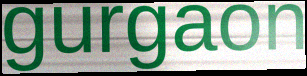
gurgaon